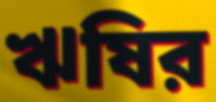
ঋষির